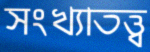
সংখ্যাতত্ত্ব